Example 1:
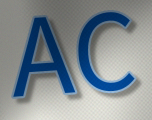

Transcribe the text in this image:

AC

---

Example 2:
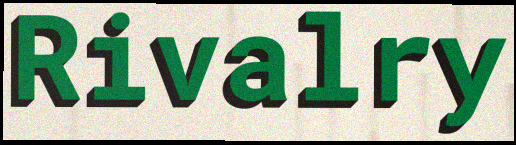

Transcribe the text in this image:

Rivalry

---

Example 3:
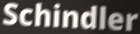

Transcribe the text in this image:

Schindler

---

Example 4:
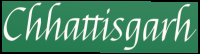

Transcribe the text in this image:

Chhattisgarh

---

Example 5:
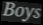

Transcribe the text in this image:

Boys